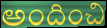
అందించి